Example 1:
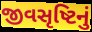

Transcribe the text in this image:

જીવસૃષ્ટિનું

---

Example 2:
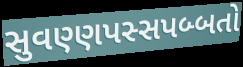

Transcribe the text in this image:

સુવણ્ણપસ્સપબ્બતો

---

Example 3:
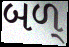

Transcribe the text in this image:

બળ્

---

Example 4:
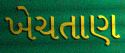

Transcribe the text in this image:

ખેચતાણ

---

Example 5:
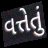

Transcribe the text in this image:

વત્તેતું